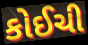
કોઈચી